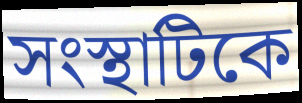
সংস্থাটিকে